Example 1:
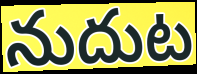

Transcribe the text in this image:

నుదుట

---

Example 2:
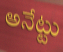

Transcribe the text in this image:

అనేట్టు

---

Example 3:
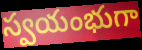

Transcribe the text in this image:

స్వయంభుగా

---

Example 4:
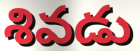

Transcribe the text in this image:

శివడు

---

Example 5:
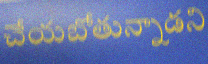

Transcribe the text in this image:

చేయబోతున్నాడని